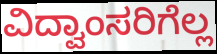
ವಿದ್ವಾಂಸರಿಗೆಲ್ಲ